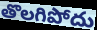
తొలగిపోదు